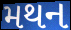
મથન